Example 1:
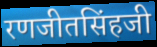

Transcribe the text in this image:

रणजीतसिंहजी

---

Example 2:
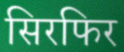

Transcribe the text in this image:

सिरफिर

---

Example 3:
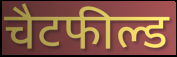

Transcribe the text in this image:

चैटफील्ड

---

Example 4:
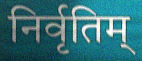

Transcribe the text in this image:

निर्वृतिम्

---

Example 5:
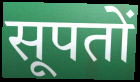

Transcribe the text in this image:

सूपतों